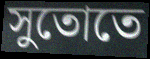
সুতোতে